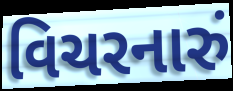
વિચરનારું